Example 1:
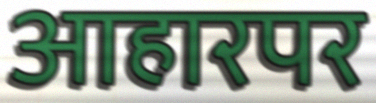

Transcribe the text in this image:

आहारपर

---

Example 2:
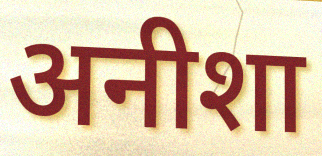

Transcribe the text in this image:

अनीशा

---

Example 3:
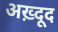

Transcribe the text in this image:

अख़्दूद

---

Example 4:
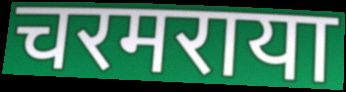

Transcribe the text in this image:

चरमराया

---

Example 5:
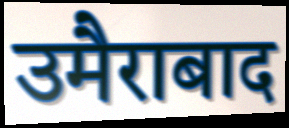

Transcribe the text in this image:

उमैराबाद